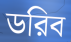
ডরিব